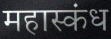
महास्कंध